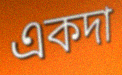
একদা